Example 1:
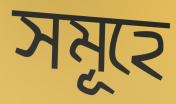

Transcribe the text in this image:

সমূহে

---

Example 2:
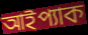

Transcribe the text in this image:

আইপ্যাক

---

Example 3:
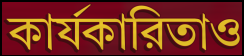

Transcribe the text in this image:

কার্যকারিতাও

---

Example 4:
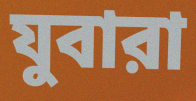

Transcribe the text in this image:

যুবারা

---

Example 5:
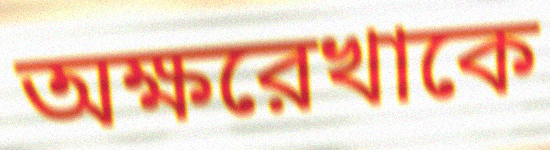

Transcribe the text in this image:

অক্ষরেখাকে